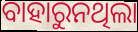
ବାହାରୁନଥିଲା